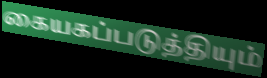
கையகப்படுத்தியும்